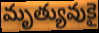
మృత్యువుకై